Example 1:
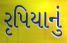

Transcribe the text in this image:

રૃપિયાનું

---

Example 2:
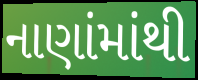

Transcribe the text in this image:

નાણાંમાંથી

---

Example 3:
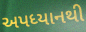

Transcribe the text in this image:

અપધ્યાનથી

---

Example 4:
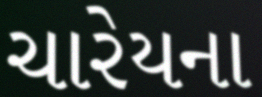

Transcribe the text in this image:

ચારેયના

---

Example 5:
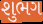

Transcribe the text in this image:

શુભગ